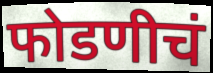
फोडणीचं